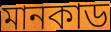
মানকাড